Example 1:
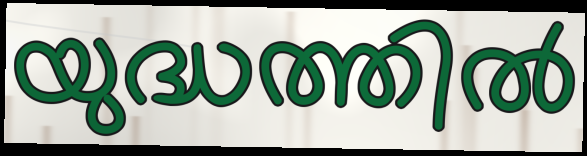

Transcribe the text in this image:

യുദ്ധത്തിൽ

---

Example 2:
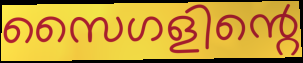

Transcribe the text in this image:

സൈഗളിന്റെ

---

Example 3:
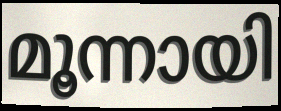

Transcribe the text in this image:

മൂന്നായി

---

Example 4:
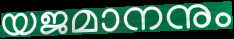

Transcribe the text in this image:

യജമാനനും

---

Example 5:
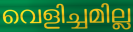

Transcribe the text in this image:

വെളിച്ചമില്ല